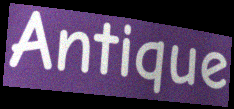
Antique